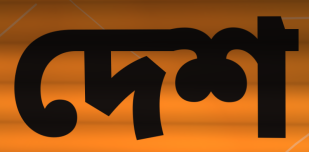
দেশ